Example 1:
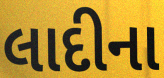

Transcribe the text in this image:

લાદીના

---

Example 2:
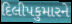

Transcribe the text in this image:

દિલીપકુમારને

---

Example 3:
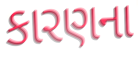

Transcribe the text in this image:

કારણના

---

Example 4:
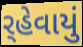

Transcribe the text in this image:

ર્‌હેવાયું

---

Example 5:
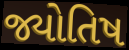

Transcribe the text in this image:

જ્યોતિષ